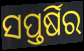
ସପ୍ତର୍ଷିର